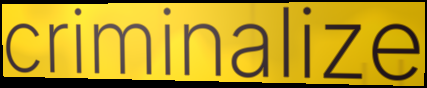
criminalize